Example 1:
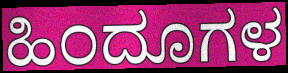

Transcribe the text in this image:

ಹಿಂದೂಗಳ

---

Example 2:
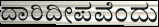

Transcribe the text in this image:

ದಾರಿದೀಪವೆಂದು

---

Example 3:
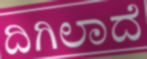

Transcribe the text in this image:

ದಿಗಿಲಾದೆ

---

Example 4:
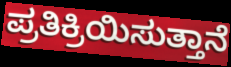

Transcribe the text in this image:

ಪ್ರತಿಕ್ರಿಯಿಸುತ್ತಾನೆ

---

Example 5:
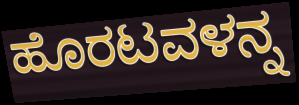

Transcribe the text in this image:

ಹೊರಟವಳನ್ನ